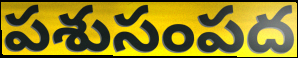
పశుసంపద